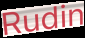
Rudin